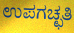
ಉಪಗಚ್ಛತಿ